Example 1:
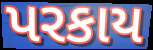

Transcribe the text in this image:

પરકાય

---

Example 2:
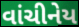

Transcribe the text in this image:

વાંચીનેય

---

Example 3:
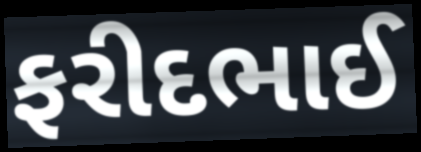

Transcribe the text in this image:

ફરીદભાઈ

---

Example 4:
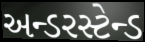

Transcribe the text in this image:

અન્ડરસ્ટેન્ડ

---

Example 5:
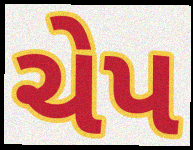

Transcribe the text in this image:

ચેપ